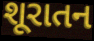
શૂરાતન